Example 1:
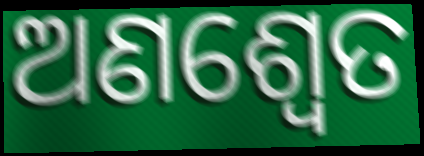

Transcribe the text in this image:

ଅଣଶ୍ୱେତ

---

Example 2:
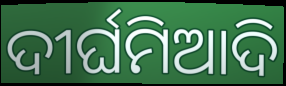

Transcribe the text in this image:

ଦୀର୍ଘମିଆଦି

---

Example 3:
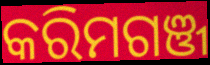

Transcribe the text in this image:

କରିମଗଞ୍ଜ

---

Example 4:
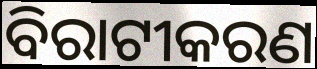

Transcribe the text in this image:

ବିରାଟୀକରଣ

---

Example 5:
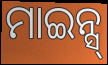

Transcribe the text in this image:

ମାଇନ୍ସ୍